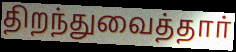
திறந்துவைத்தார்